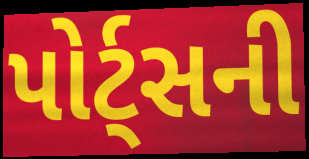
પોર્ટ્સની